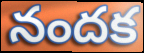
నందక